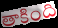
తాకింది